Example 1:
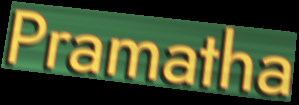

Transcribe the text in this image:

Pramatha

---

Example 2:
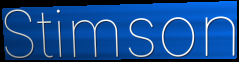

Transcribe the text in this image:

Stimson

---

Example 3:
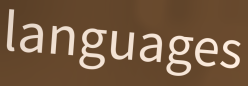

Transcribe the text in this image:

languages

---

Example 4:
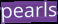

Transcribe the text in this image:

pearls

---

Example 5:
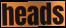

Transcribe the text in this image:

heads